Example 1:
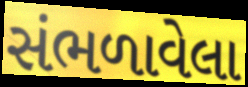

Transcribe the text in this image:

સંભળાવેલા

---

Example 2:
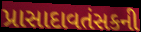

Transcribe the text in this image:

પ્રાસાદાવતંસકની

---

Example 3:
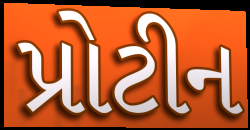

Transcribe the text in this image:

પ્રોટીન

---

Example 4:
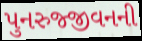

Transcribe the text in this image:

પુનરુજ્જીવનની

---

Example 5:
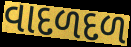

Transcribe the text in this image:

વાદળદળ